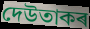
দেউতাকৰ